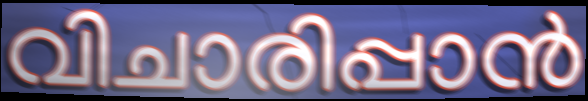
വിചാരിപ്പാൻ